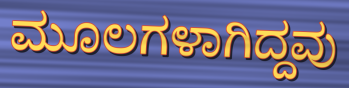
ಮೂಲಗಳಾಗಿದ್ದವು